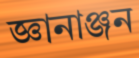
জ্ঞানাঞ্জন